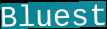
Bluest